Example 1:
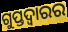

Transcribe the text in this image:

ଗୁପ୍ତଦ୍ୱାରର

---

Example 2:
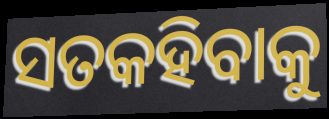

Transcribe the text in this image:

ସତକହିବାକୁ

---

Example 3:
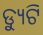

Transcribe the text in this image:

ଡ୍ୟୁଟି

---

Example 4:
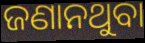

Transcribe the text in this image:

ଜଣାନଥୁବା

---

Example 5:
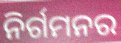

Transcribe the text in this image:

ନିର୍ଗମନର